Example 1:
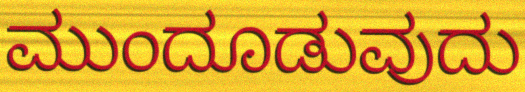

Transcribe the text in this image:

ಮುಂದೂಡುವುದು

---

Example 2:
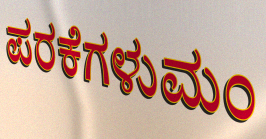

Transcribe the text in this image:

ಪರಕೆಗಳುಮಂ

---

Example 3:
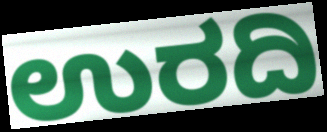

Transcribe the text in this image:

ಉರದಿ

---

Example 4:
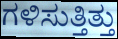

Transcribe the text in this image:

ಗಳಿಸುತ್ತಿತ್ತು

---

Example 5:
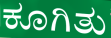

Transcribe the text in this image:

ಕೂಗಿತು